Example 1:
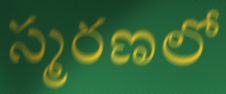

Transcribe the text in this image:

స్మరణలో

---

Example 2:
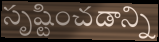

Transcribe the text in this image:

సృష్టించడాన్ని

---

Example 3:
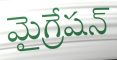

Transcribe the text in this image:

మైగ్రేషన్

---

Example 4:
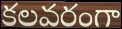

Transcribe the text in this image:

కలవరంగా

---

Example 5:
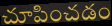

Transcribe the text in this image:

చూపించడం